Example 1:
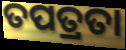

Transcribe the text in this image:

ତପତ୍ରତା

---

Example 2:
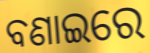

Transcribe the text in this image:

ବଣାଇରେ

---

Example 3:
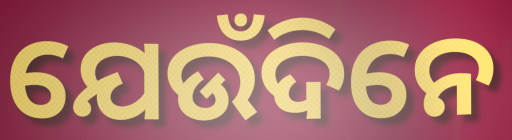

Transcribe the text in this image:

ଯେଉଁଦିନେ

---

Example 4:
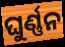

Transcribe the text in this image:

ଘୁର୍ଣ୍ଣନ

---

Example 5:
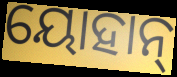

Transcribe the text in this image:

ୟୋହାନ୍